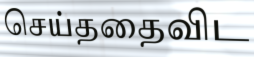
செய்ததைவிட